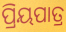
ପ୍ରିୟପାତ୍ର